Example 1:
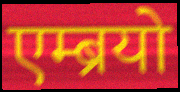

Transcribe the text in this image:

एम्ब्रयो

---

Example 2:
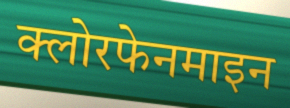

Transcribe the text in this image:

क्लोरफेनमाइन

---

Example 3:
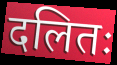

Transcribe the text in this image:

दलितः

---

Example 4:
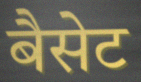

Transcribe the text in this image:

बैसेट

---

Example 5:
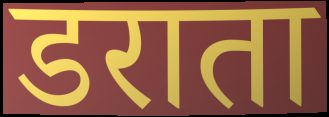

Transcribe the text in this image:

डराता